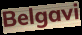
Belgavi